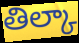
తిల్కా